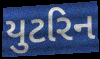
યુટરિન